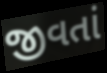
જીવતાં